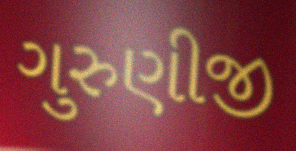
ગુરુણીજી